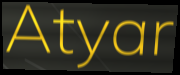
Atyar